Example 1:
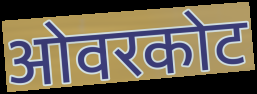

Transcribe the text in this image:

ओवरकोट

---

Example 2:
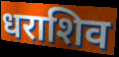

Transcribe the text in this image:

धराशिव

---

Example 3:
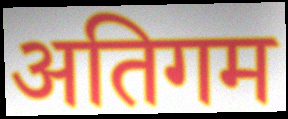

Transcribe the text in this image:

अतिगम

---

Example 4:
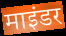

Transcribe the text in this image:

माइंडर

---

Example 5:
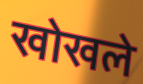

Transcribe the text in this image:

खोखले